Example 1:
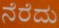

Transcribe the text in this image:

ನೆರೆದು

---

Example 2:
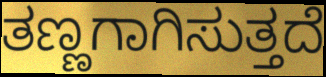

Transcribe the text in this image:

ತಣ್ಣಗಾಗಿಸುತ್ತದೆ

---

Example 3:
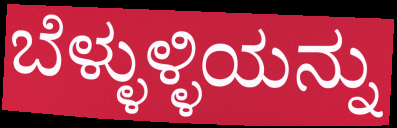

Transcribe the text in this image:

ಬೆಳ್ಳುಳ್ಳಿಯನ್ನು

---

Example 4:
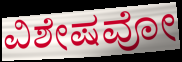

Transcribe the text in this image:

ವಿಶೇಷವೋ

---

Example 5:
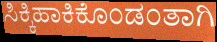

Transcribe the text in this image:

ಸಿಕ್ಕಿಹಾಕಿಕೊಂಡಂತಾಗಿ